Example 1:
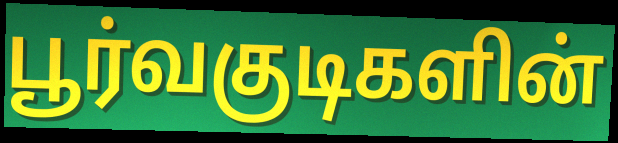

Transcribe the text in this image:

பூர்வகுடிகளின்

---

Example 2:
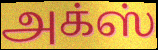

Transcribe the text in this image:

அக்ஸ்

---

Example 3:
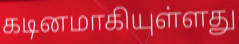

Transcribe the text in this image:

கடினமாகியுள்ளது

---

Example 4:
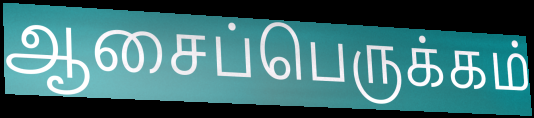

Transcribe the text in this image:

ஆசைப்பெருக்கம்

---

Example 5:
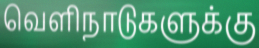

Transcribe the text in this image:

வெளிநாடுகளுக்கு